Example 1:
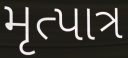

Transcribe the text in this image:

મૃત્પાત્ર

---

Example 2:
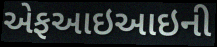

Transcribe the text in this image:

એફઆઇઆઇની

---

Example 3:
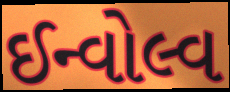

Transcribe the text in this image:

ઈન્વોલ્વ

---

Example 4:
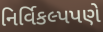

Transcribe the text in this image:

નિર્વિકલ્પપણે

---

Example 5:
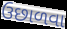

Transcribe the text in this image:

ઉછાળવા